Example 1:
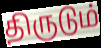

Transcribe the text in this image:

திருடும்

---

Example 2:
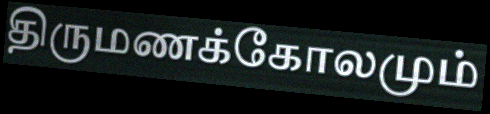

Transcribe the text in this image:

திருமணக்கோலமும்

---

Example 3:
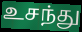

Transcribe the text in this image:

உசந்து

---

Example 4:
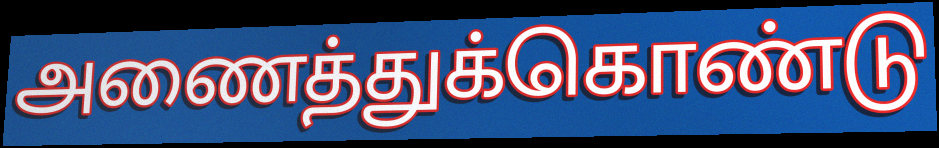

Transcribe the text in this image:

அணைத்துக்கொண்டு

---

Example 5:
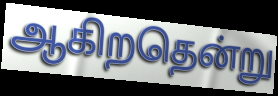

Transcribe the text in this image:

ஆகிறதென்று